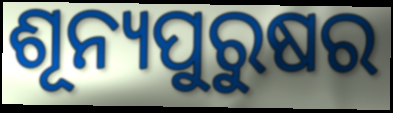
ଶୂନ୍ୟପୁରୁଷର